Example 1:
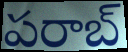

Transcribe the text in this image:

పరాబ్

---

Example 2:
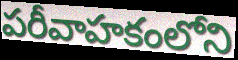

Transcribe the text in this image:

పరీవాహకంలోని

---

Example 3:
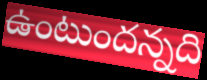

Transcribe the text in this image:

ఉంటుందన్నది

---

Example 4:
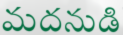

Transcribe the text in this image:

మదనుడి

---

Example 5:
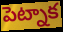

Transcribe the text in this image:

పెట్నాక